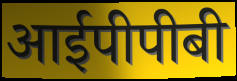
आईपीपीबी